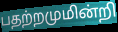
பதற்றமுமின்றி